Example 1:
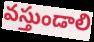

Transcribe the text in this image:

వస్తుండాలి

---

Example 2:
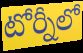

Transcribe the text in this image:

టోర్నీలో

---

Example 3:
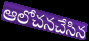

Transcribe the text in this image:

ఆలోచనచేసిన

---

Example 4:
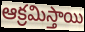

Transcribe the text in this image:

ఆక్రమిస్తాయి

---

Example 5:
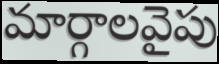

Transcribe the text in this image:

మార్గాలవైపు